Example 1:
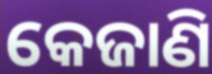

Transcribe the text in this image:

କେଜାଣି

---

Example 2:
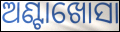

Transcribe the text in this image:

ଅଣ୍ଟାଖୋସା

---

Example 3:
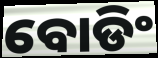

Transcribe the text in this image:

ବୋଡିଂ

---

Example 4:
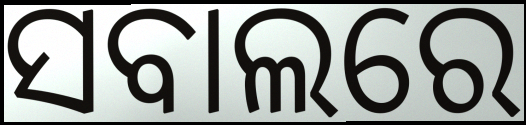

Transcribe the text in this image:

ସବାଲରେ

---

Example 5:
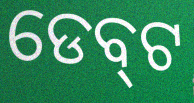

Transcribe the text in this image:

ଡେବ୍‌ଟ